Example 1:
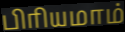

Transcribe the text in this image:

பிரியமாம்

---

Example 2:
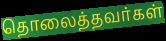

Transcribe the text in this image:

தொலைத்தவர்கள்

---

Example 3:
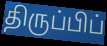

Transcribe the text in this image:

திருப்பிப்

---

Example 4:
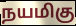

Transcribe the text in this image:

நயமிகு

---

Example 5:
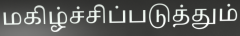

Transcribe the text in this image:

மகிழ்ச்சிப்படுத்தும்